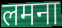
लमना